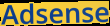
Adsense